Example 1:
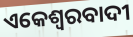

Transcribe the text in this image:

ଏକେଶ୍ଵରବାଦୀ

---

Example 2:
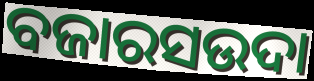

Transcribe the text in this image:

ବଜାରସଉଦା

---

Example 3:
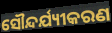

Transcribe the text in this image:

ସୌନ୍ଦର୍ଯ୍ୟୀକରଣ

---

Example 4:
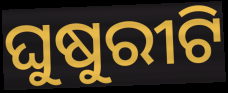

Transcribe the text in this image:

ଘୁଷୁରୀଟି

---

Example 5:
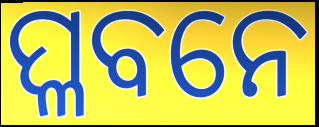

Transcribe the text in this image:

ପ୍ଳବନେ